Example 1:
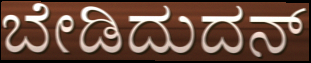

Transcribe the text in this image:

ಬೇಡಿದುದನ್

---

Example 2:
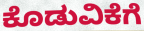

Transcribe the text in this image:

ಕೊಡುವಿಕೆಗೆ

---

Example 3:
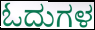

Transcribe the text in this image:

ಓದುಗಳ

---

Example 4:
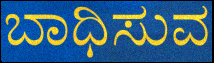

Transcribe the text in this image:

ಬಾಧಿಸುವ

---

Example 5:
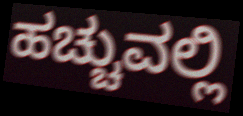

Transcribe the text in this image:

ಹಚ್ಚುವಲ್ಲಿ